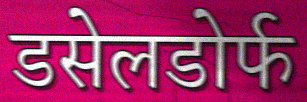
डसेलडोर्फ